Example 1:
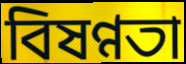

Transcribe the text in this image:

বিষণ্ণতা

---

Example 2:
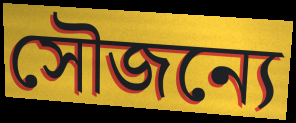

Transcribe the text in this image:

সৌজন্যে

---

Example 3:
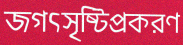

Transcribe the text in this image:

জগৎসৃষ্টিপ্রকরণ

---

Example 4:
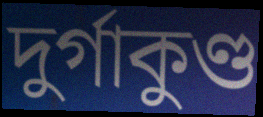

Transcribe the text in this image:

দুর্গাকুণ্ড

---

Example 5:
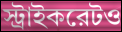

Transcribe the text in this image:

স্ট্রাইকরেটও